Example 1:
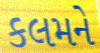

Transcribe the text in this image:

કલમને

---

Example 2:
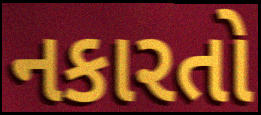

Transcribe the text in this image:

નકારતો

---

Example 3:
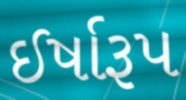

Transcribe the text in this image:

ઈર્ષારૂપ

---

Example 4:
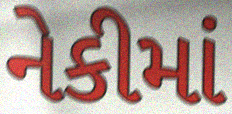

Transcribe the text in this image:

નેકીમાં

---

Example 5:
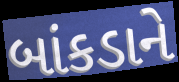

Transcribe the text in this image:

બાંકડાને